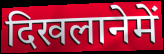
दिखलानेमें